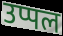
उप्पल